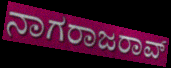
ನಾಗರಾಜರಾವ್